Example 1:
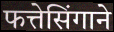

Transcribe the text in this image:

फत्तेसिंगाने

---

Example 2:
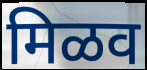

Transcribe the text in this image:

मिळव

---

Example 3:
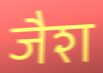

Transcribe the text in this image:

जैश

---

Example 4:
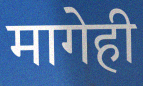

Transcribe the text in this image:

मागेही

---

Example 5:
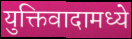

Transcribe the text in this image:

युक्तिवादामध्ये